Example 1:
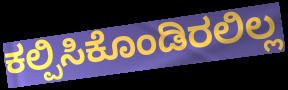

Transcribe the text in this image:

ಕಲ್ಪಿಸಿಕೊಂಡಿರಲಿಲ್ಲ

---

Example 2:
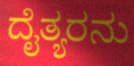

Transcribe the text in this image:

ದೈತ್ಯರನು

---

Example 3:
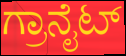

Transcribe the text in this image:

ಗ್ರಾನೈಟ್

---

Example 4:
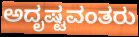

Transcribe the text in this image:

ಅದೃಷ್ಟವಂತರು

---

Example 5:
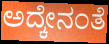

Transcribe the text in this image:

ಅದ್ಕೇನಂತೆ